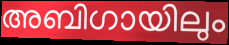
അബിഗായിലും